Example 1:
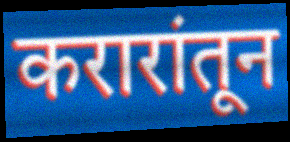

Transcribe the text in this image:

करारांतून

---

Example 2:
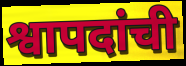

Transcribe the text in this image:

श्वापदांची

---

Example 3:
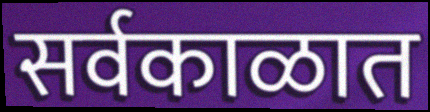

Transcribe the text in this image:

सर्वकाळात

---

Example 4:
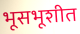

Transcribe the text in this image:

भूसभूशीत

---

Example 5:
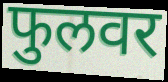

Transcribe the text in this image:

फुलवर